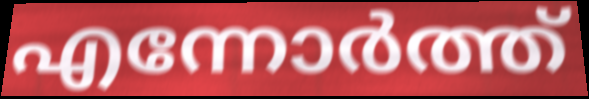
എന്നോർത്ത്